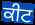
ਕੀਟ